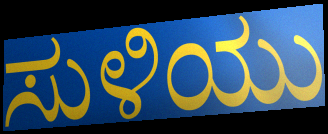
ಸುಳಿಯು